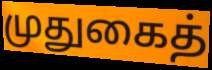
முதுகைத்